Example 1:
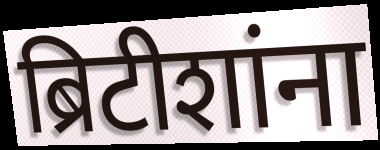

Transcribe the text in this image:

ब्रिटीशांना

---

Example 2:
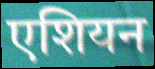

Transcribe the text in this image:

एशियन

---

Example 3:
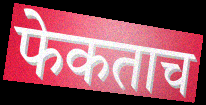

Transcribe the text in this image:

फेकताच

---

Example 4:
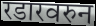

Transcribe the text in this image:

रडारवरुन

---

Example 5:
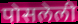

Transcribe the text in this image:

पोसलेली